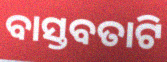
ବାସ୍ତବତାଟି